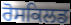
ਰੋਸਕਿਲਡ